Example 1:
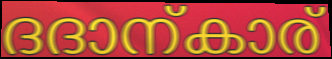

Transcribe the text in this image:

ദദാന്കാര്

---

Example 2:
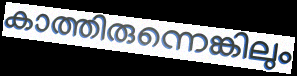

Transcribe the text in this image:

കാത്തിരുന്നെങ്കിലും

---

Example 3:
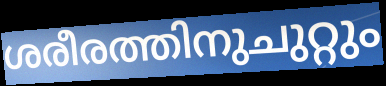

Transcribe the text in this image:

ശരീരത്തിനുചുറ്റും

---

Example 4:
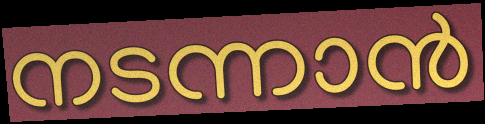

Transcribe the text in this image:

നടന്നാൻ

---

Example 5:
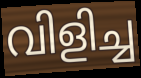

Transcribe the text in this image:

വിളിച്ച